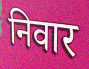
निवार